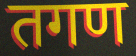
तगण